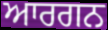
ਆਰਗਨ